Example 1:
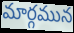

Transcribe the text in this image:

మార్గమున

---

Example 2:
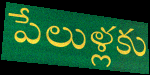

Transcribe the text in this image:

పేలుళ్లకు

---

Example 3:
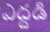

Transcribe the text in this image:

ఎద్దడి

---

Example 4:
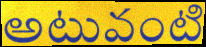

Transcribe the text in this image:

అటువంటి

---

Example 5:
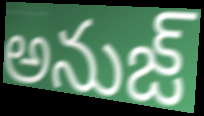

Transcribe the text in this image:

అనుజ్